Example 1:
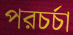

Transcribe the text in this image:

পরচর্চা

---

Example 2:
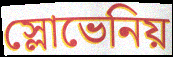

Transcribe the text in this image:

স্লোভেনিয়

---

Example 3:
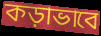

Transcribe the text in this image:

কড়াভাবে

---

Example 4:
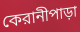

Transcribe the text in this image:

কেরানীপাড়া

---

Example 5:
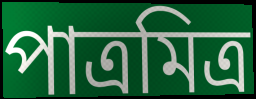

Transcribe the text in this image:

পাত্রমিত্র